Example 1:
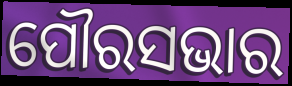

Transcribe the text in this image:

ପୌରସଭାର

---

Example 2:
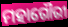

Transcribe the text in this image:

ମହାଗୌରୀ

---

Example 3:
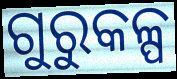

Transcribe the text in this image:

ଗୁରୁକଳ୍ପ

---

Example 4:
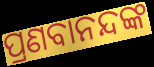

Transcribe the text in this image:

ପ୍ରଣବାନନ୍ଦଙ୍କ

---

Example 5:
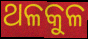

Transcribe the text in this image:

ଥଳକୁଳ